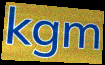
kgm